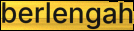
berlengah